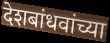
देशबांधवांच्या